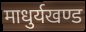
माधुर्यखण्ड